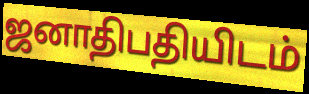
ஜனாதிபதியிடம்